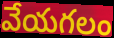
వేయగలం